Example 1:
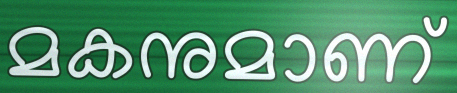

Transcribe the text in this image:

മകനുമാണ്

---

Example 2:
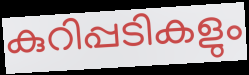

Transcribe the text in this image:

കുറിപ്പടികളും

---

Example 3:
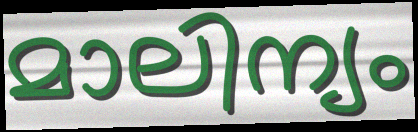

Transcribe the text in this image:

മാലിന്യം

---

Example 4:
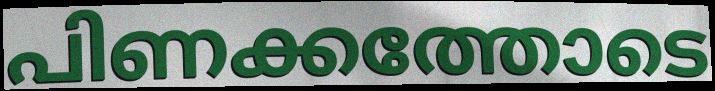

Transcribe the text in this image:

പിണക്കത്തോടെ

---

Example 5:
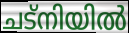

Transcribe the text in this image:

ചട്നിയിൽ